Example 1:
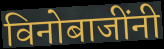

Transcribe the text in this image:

विनोबाजींनी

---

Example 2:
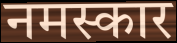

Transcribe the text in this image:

नमस्कार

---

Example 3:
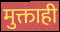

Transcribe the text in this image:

मुक्ताही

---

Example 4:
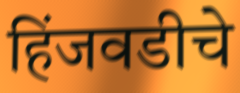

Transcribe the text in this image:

हिंजवडीचे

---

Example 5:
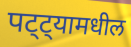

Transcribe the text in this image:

पट्ट्यामधील